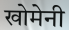
खोमेनी